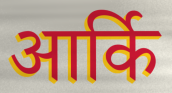
आर्कि